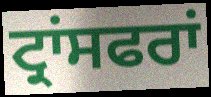
ਟ੍ਰਾਂਸਫਰਾਂ